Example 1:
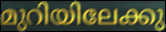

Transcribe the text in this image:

മുറിയിലേക്കു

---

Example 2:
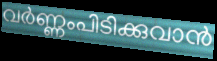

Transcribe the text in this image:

വർണ്ണംപിടിക്കുവാൻ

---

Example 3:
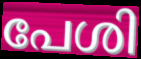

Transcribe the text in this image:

പേശി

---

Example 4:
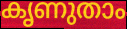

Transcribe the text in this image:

കൃണുതാം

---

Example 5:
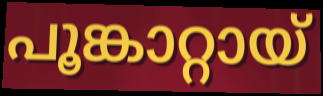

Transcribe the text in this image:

പൂങ്കാറ്റായ്